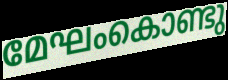
മേഘംകൊണ്ടു